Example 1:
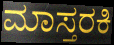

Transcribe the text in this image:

ಮಾಸ್ತರಕಿ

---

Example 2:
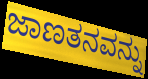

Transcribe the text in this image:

ಜಾಣತನವನ್ನು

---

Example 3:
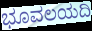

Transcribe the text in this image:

ಭೂವಲಯದಿ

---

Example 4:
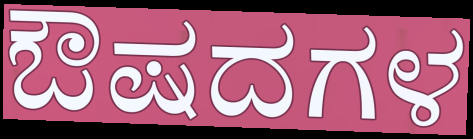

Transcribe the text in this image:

ಔಷದಗಳ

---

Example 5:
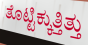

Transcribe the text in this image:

ತೊಟ್ಟಿಕ್ಕುತ್ತಿತ್ತು